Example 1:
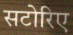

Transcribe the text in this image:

सटोरिए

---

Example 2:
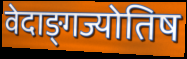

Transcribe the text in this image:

वेदाङ्गज्योतिष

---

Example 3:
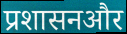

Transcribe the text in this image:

प्रशासनऔर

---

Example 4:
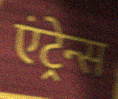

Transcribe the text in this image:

एंट्रेन्स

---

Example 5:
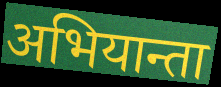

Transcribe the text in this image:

अभियान्ता